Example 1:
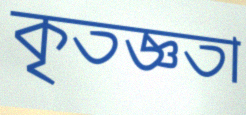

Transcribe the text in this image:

কৃতজ্ঞতা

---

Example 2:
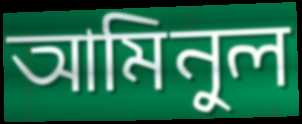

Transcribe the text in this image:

আমিনুল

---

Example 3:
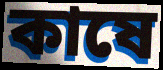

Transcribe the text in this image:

কাষে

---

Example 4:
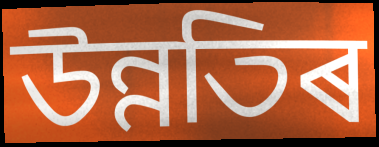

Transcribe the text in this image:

উন্নতিৰ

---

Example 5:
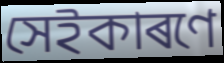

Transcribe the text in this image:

সেইকাৰণে